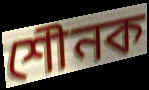
শৌনক